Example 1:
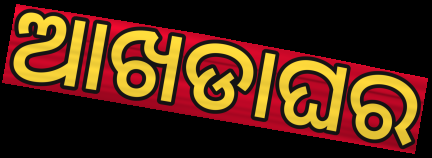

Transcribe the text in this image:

ଆଖଡାଘର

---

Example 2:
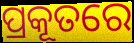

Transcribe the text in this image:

ପ୍ରକୂତରେ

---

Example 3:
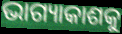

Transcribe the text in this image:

ଭାଗ୍ୟାକାଶକୁ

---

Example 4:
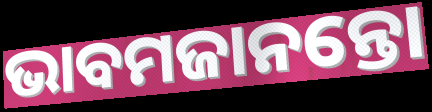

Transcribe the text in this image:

ଭାବମଜାନନ୍ତୋ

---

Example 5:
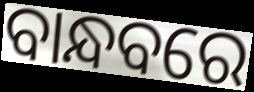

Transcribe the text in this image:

ବାନ୍ଧବରେ